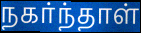
நகர்ந்தாள்